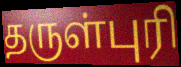
தருள்புரி